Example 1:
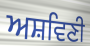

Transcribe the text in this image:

ਅਸ਼ਵਿਣੀ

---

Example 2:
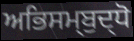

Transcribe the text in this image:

ਅਭਿਸਮ੍ਬੁਦ੍ਧੋ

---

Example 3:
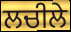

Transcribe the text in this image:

ਲਚੀਲੇ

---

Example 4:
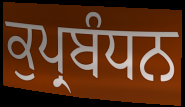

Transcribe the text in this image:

ਕੁਪ੍ਰਬੰਧਨ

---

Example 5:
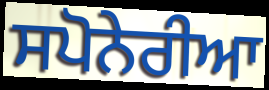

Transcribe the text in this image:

ਸਪੋਨੇਰੀਆ